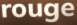
rouge